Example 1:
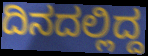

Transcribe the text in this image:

ದಿನದಲ್ಲಿದ್ದ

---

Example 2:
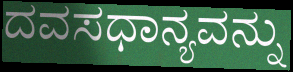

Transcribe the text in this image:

ದವಸಧಾನ್ಯವನ್ನು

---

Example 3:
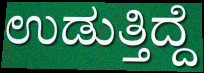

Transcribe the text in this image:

ಉಡುತ್ತಿದ್ದೆ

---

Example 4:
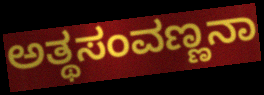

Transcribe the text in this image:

ಅತ್ಥಸಂವಣ್ಣನಾ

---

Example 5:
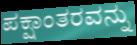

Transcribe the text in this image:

ಪಕ್ಷಾಂತರವನ್ನು